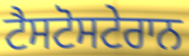
ਟੈਸਟੋਸਟੇਰਾਨ